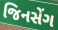
જિનસેંગ